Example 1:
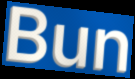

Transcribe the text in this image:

Bun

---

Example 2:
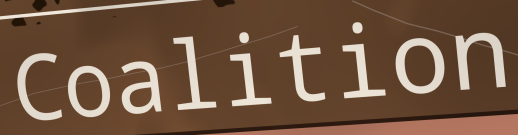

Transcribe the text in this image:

Coalition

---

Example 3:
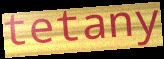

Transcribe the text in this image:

tetany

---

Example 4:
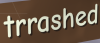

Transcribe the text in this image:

trrashed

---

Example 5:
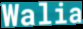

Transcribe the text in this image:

Walia